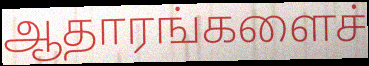
ஆதாரங்களைச்